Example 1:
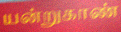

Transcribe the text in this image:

யன்றுகாண்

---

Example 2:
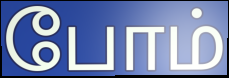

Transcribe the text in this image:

போம்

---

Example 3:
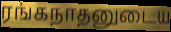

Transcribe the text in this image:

ரங்கநாதனுடைய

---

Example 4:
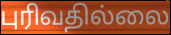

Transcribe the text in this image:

புரிவதில்லை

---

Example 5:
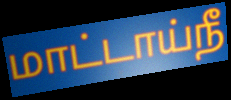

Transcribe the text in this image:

மாட்டாய்நீ